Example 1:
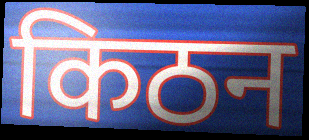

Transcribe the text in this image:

किठन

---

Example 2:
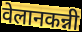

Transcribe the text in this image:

वेलानकन्नी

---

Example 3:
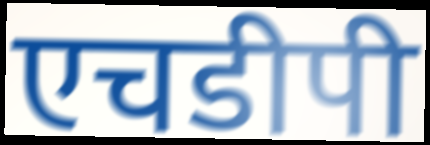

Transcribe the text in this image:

एचडीपी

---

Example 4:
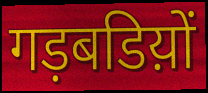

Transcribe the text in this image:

गड़बडिय़ों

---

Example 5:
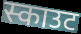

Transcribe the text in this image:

स्काउट